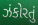
ઝંકોરતું